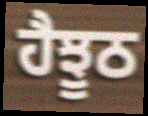
ਹੈਝੂਠ